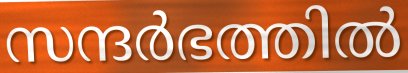
സന്ദർഭത്തിൽ